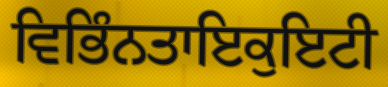
ਵਿਭਿੰਨਤਾਇਕੁਇਟੀ